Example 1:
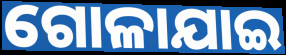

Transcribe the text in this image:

ଗୋଳାଯାଇ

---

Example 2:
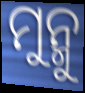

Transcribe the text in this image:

ମୁନ୍ମୁ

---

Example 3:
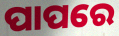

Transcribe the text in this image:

ପାପରେ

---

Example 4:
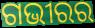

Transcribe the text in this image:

ଗଭୀରର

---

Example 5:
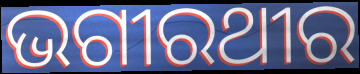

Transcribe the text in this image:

ଭଗୀରଥୀର